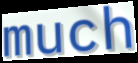
much